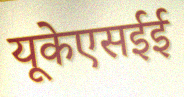
यूकेएसईई